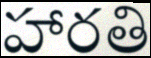
హారతి